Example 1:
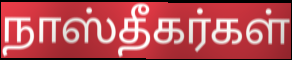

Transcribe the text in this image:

நாஸ்தீகர்கள்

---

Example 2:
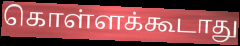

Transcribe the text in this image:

கொள்ளக்கூடாது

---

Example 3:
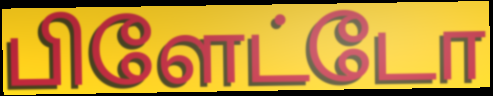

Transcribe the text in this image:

பிளேட்டோ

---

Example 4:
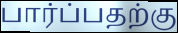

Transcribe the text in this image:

பார்ப்பதற்கு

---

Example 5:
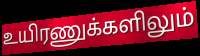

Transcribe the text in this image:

உயிரணுக்களிலும்